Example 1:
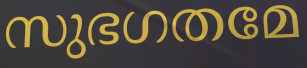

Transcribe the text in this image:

സുഭഗതമേ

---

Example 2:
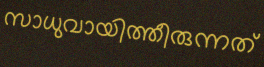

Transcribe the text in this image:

സാധുവായിത്തീരുന്നത്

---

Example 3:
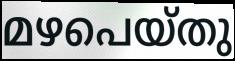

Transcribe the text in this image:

മഴപെയ്തു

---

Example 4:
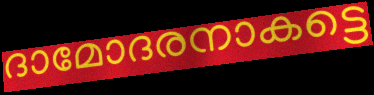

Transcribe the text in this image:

ദാമോദരനാകട്ടെ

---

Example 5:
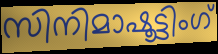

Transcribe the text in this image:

സിനിമാഷൂട്ടിംഗ്